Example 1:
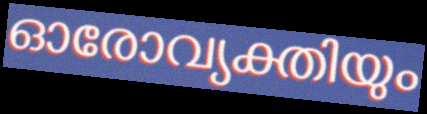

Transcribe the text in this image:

ഓരോവ്യക്തിയും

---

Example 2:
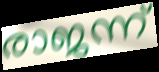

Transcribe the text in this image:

രാജന്ന്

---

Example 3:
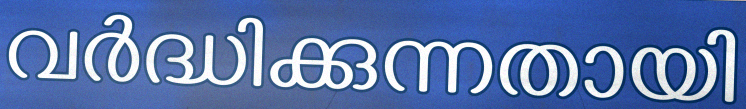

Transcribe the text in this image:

വർദ്ധിക്കുന്നതായി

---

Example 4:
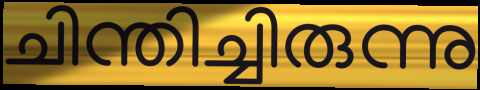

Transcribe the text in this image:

ചിന്തിച്ചിരുന്നു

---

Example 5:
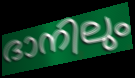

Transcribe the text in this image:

ദാനിലും